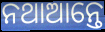
ନଥାଆନ୍ତେ